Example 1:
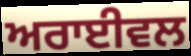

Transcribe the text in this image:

ਅਰਾਈਵਲ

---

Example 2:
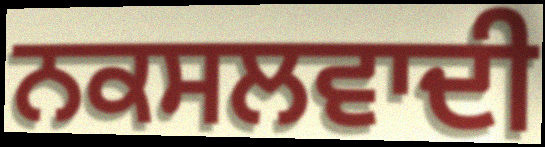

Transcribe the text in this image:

ਨਕਸਲਵਾਦੀ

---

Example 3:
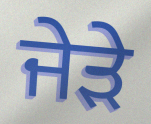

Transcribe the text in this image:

ਜੇੜੇ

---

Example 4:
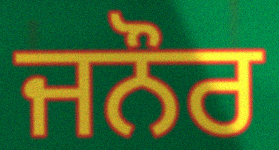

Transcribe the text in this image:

ਜਨੌਰ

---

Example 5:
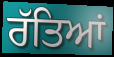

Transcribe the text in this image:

ਰੱਤਿਆਂ